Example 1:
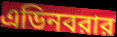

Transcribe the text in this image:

এডিনবরার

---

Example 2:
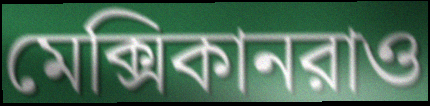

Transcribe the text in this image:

মেক্সিকানরাও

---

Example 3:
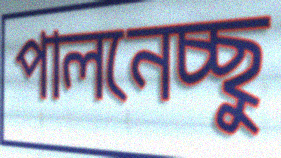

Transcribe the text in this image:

পালনেচ্ছু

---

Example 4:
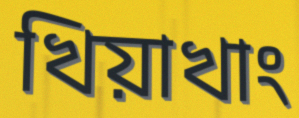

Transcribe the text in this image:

খিয়াখাং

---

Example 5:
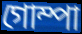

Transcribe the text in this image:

গোম্পা